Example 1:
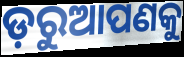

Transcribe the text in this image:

ଡ଼ରୁଆପଣକୁ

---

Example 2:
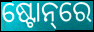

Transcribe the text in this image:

ଷ୍ଟୋନ୍‌ରେ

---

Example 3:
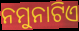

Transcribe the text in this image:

ନମୁନାଟିଏ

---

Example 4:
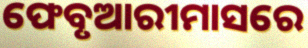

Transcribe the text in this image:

ଫେବୃଆରୀମାସରେ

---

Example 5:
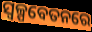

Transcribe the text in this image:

ସ୍ୱଳ୍ପବେତନରେ